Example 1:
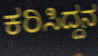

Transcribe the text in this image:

ಕರಿಸಿದ್ದನ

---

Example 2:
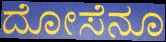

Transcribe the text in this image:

ದೋಸೆನೂ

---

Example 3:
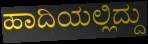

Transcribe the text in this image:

ಹಾದಿಯಲ್ಲಿದ್ದು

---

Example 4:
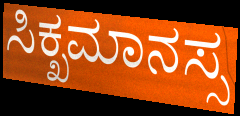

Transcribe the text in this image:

ಸಿಕ್ಖಮಾನಸ್ಸ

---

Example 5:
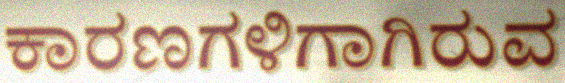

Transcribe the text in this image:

ಕಾರಣಗಳಿಗಾಗಿರುವ